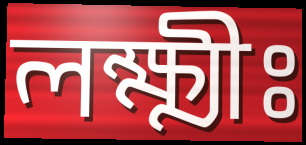
লক্ষ্মীঃ